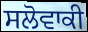
ਸਲੋਵਾਕੀ